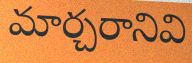
మార్చరానివి